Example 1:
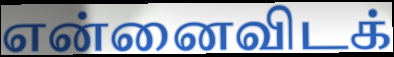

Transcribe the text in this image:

என்னைவிடக்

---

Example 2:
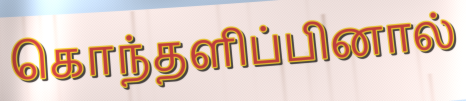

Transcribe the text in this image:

கொந்தளிப்பினால்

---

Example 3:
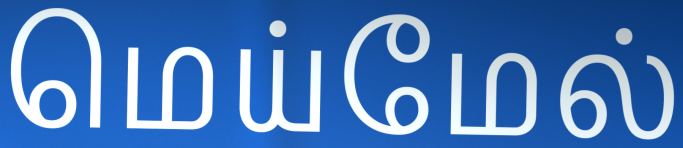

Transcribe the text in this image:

மெய்மேல்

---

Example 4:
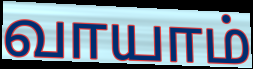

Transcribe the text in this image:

வாயாம்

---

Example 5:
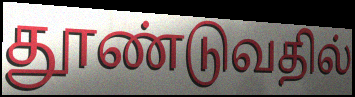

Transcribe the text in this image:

தூண்டுவதில்